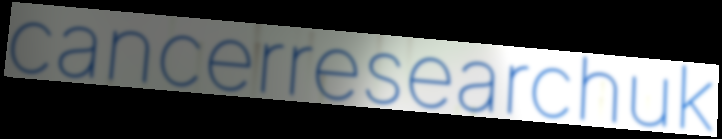
cancerresearchuk